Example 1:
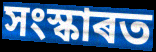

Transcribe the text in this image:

সংস্কাৰত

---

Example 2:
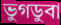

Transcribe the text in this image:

ভুগডুবা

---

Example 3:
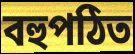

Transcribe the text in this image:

বহুপঠিত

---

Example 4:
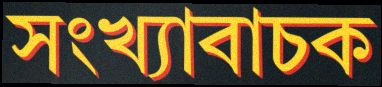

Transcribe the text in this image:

সংখ্যাবাচক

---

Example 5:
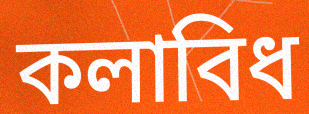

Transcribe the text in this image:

কলাবিধ